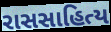
રાસસાહિત્ય